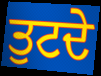
ਤੁਟਦੇ